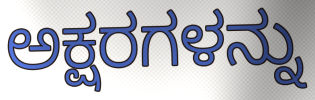
ಅಕ್ಷರಗಳನ್ನು